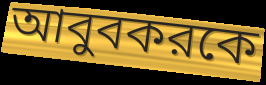
আবুবকরকে